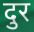
दुर